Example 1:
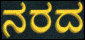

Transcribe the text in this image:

ನರದ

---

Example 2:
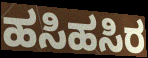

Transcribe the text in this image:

ಹಸಿಹಸಿರ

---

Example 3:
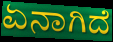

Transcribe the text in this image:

ಏನಾಗಿದೆ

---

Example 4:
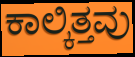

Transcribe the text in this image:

ಕಾಲ್ಕಿತ್ತವು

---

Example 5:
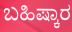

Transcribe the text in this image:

ಬಹಿಷ್ಕಾರ